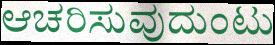
ಆಚರಿಸುವುದುಂಟು